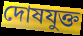
দোষযুক্ত